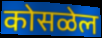
कोसळेल